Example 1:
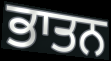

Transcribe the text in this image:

ਭਾਤਨ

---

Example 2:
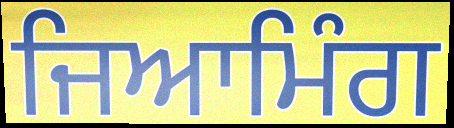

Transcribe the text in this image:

ਜਿਆਮਿੰਗ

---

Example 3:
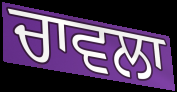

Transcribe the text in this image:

ਚਾਵਲਾ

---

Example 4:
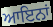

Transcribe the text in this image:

ਆਇਨਾਂ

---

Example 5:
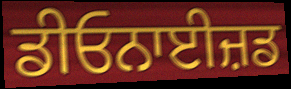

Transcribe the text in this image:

ਡੀਓਨਾਈਜ਼ਡ